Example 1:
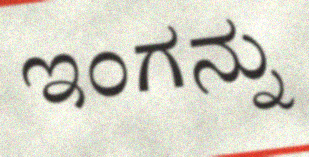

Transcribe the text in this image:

ಇಂಗನ್ನು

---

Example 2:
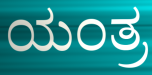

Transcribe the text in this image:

ಯಂತ್ರ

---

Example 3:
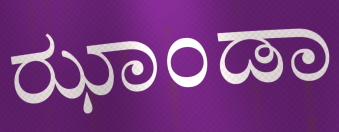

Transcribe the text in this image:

ಝಾಂಡಾ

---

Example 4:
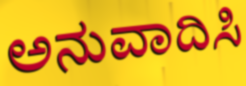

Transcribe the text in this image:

ಅನುವಾದಿಸಿ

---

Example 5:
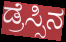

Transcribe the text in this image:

ಡ್ರೆಸ್ಸಿನ